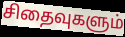
சிதைவுகளும்